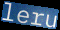
leru